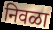
निवळा